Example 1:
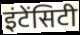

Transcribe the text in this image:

इंटेंसिटी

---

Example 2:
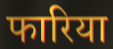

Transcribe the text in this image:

फारिया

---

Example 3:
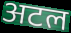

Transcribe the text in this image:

अटल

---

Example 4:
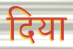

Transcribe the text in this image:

दिया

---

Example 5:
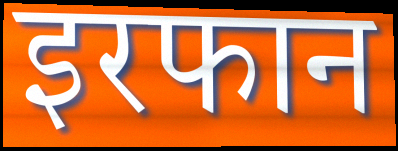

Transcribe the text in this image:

इरफान